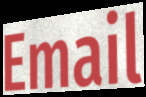
Email